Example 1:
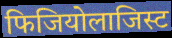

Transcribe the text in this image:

फिजियोलाजिस्ट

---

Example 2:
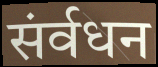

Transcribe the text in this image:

संर्वधन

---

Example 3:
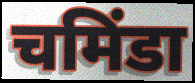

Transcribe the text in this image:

चमिंडा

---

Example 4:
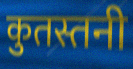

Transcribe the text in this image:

कुतस्तनी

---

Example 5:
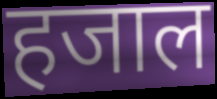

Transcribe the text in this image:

हजाल